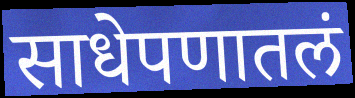
साधेपणातलं